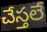
చేస్తలే